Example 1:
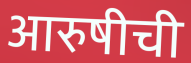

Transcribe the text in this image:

आरुषीची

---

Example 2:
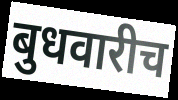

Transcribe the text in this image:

बुधवारीच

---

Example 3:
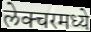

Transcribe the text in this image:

लेक्चरमध्ये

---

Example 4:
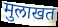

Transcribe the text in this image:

मुलाखत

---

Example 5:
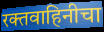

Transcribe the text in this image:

रक्तवाहिनीचा